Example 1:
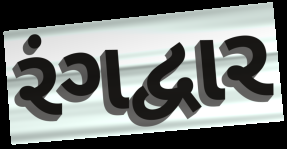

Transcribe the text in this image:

રંગદ્વાર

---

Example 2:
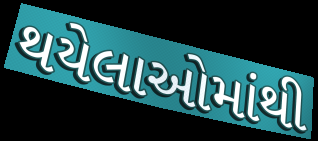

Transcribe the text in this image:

થયેલાઓમાંથી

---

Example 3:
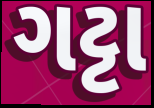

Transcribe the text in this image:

ગટ્ટા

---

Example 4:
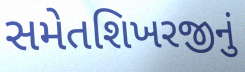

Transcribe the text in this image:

સમેતશિખરજીનું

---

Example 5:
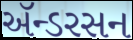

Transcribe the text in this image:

ઍન્ડરસન